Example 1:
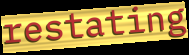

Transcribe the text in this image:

restating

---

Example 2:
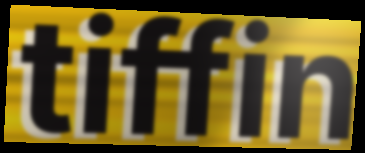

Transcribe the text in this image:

tiffin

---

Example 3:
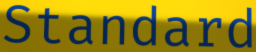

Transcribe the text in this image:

Standard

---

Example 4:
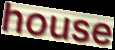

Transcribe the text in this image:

house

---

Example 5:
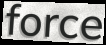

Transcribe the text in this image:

force